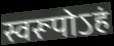
स्वरूपोऽहं